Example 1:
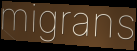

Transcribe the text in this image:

migrans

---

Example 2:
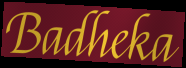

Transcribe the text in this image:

Badheka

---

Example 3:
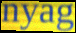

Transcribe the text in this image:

nyag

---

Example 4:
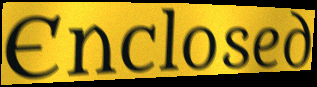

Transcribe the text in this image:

Enclosed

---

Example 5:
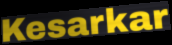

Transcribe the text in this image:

Kesarkar